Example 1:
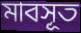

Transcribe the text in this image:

মাবসূত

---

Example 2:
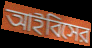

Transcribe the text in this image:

আইবিসের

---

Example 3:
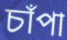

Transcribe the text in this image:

চাঁপা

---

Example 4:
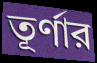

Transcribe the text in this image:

তূর্ণার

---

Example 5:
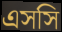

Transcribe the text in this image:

এসসি